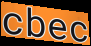
cbec